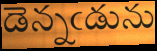
డెన్నఁడును